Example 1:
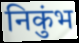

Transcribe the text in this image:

निकुंभ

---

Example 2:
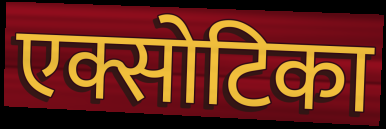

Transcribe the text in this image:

एक्सोटिका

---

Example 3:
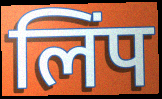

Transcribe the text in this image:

लिंप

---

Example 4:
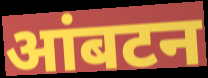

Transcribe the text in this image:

आंबटन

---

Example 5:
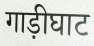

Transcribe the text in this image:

गाड़ीघाट